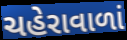
ચહેરાવાળાં